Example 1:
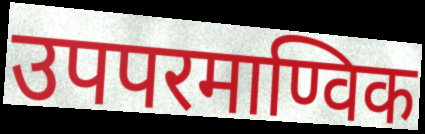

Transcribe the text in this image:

उपपरमाण्विक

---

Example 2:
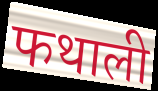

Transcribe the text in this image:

फथाली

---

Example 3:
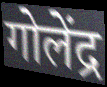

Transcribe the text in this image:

गोलेंद्र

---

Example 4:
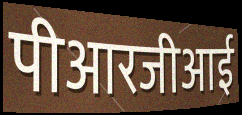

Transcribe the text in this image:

पीआरजीआई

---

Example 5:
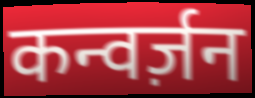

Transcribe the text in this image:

कन्वर्ज़न